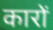
कारों